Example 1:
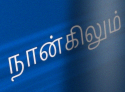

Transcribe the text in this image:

நான்கிலும்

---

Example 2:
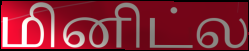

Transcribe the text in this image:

மினிட்ல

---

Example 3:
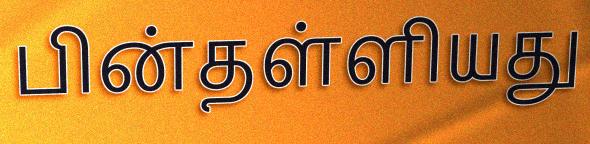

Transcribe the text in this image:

பின்தள்ளியது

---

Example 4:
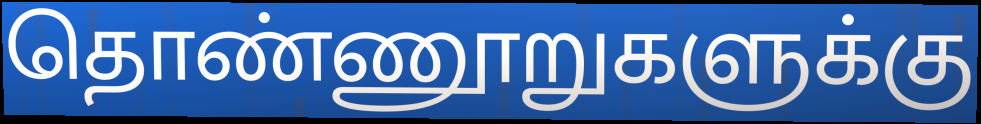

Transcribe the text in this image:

தொண்ணூறுகளுக்கு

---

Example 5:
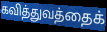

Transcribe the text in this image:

கவித்துவத்தைக்